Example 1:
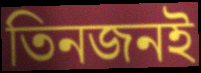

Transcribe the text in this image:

তিনজনই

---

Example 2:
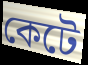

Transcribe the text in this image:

কেটে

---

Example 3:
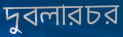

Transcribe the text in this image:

দুবলারচর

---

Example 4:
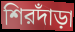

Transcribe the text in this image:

শিরদাঁড়া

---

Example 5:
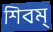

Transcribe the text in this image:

শিবম্